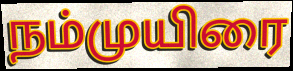
நம்முயிரை